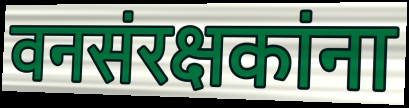
वनसंरक्षकांना